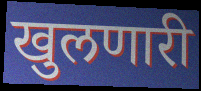
खुलणारी